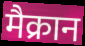
मैक्रान